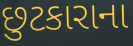
છુટકારાના